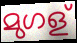
മുഗള്